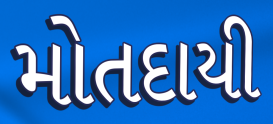
મોતદાયી